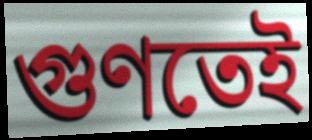
গুণতেই